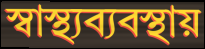
স্বাস্থ্যব্যবস্থায়